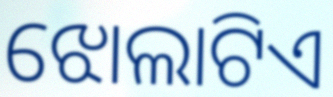
ଝୋଲାଟିଏ